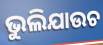
ଭୁଲିଯାଉଚ